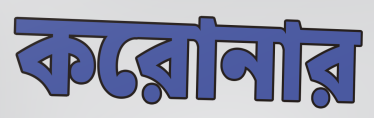
করোনার